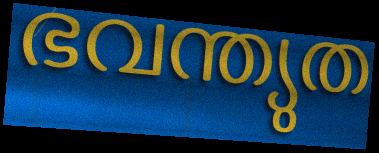
ഭവന്ത്യുത